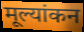
मूल्‍यांकन